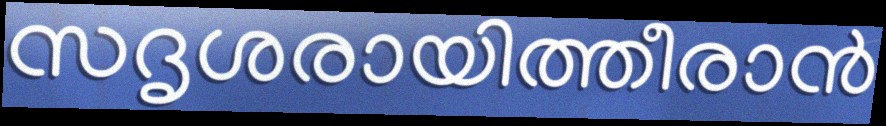
സദൃശരായിത്തീരാൻ